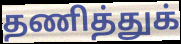
தணித்துக்